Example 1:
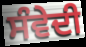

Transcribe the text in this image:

ਸੰਵੇਦੀ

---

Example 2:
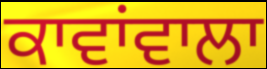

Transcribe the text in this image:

ਕਾਵਾਂਵਾਲਾ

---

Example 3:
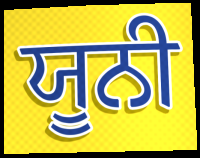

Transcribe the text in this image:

ਯੂਨੀ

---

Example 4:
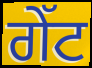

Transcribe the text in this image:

ਗੇੱਟ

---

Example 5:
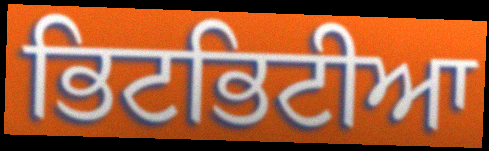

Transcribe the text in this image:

ਭਿਟਭਿਟੀਆ